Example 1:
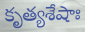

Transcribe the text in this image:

కృత్యశేషాః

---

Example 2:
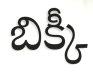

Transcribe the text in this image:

బిక్కీ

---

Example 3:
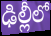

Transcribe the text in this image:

ఢిల్లీలో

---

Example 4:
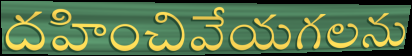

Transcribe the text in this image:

దహించివేయగలను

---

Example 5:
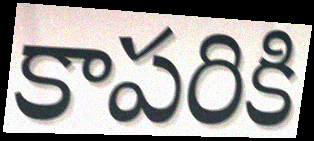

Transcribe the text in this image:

కాపరికి